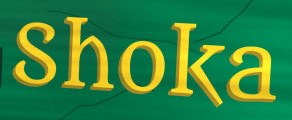
Shoka